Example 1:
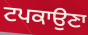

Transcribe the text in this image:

ਟਪਕਾਉਣਾ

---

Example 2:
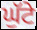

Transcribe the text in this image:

ਘੁੱਟੇ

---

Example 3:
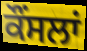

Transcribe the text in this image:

ਕੌਂਸਲਾਂ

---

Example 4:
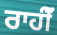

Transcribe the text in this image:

ਰਾਹੀਂੰ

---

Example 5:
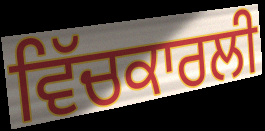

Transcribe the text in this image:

ਵਿੱਚਕਾਰਲੀ